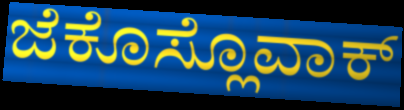
ಜೆಕೊಸ್ಲೊವಾಕ್